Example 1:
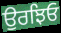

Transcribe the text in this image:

ਉਰਝਿਓ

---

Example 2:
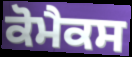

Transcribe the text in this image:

ਕੋਮੈਕਸ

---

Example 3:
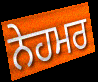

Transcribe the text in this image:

ਨੇਹਮਰ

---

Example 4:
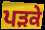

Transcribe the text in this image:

ਪੜਕੇ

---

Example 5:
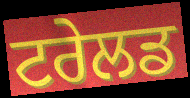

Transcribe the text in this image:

ਟਰੇਲਡ